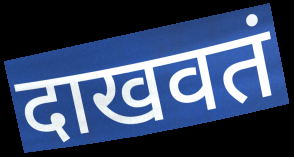
दाखवतं